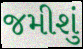
જમીશું